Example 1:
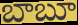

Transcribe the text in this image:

బాబూ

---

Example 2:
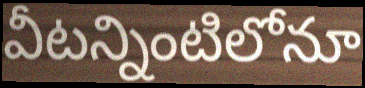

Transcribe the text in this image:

వీటన్నింటిలోనూ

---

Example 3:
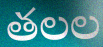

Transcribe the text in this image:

తలల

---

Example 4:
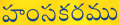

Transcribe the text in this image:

హంసకరము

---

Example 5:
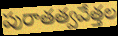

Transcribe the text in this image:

పురాతత్వవేత్తల